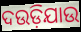
ଦଉଡ଼ିଯାଉ